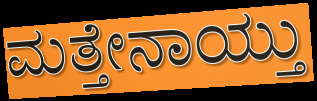
ಮತ್ತೇನಾಯ್ತು